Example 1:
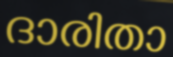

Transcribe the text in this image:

ദാരിതാ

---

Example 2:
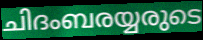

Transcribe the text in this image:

ചിദംബരയ്യരുടെ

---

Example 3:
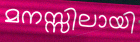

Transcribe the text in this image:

മനസ്സിലായി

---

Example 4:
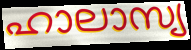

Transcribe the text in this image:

ഹാലാസ്യ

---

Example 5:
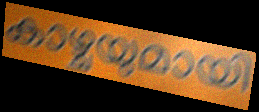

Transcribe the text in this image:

കാഴ്ചയുമായി